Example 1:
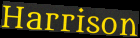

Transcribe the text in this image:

Harrison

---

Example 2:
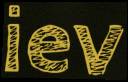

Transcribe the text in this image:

iev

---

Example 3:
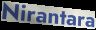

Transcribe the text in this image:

Nirantara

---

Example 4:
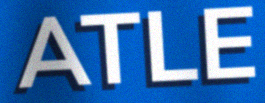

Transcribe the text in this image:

ATLE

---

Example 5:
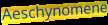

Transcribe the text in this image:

Aeschynomene